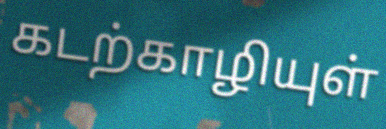
கடற்காழியுள்